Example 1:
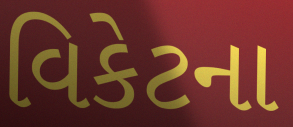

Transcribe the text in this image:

વિકેટના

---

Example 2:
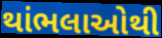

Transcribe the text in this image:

થાંભલાઓથી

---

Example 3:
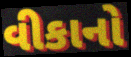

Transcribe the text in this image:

વીકાનો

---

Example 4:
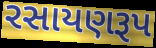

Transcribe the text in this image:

રસાયણરૂપ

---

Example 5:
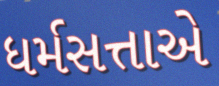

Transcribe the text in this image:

ધર્મસત્તાએ